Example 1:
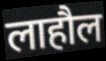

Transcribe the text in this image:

लाहौल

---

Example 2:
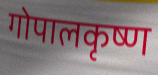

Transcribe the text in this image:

गोपालकृष्‍ण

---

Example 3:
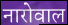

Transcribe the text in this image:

नारोवाल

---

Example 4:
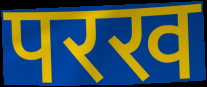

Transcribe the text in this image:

परख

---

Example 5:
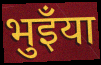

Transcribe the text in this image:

भुइँया